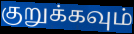
குறுக்கவும்